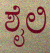
ಶೈಲಿ